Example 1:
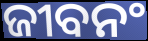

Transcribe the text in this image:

ଜୀବନଂ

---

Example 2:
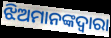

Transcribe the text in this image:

ଝିଅମାନଙ୍କଦ୍ଵାରା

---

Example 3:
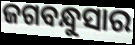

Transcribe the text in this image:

ଜଗବନ୍ଧୁସାର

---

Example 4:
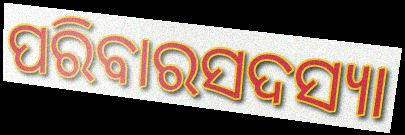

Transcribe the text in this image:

ପରିବାରସଦସ୍ୟା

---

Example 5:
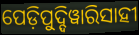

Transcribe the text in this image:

ପେଡ଼ିପୁଦ୍ଦିୱାରିସାହୀ